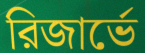
রিজার্ভে